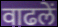
वाढलें